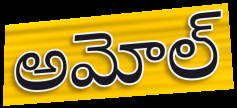
అమోల్